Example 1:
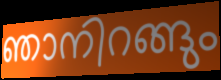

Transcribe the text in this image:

ഞാനിറങ്ങും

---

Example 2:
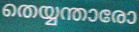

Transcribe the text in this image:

തെയ്യന്താരോ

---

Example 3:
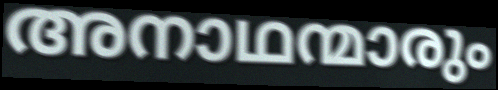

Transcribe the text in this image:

അനാഥന്മാരും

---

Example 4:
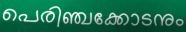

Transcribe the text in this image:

പെരിഞ്ചക്കോടനും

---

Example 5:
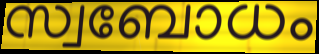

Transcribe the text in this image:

സ്വബോധം